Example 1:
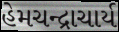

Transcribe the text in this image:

હેમચન્દ્રાચાર્ય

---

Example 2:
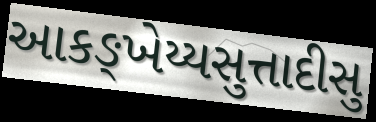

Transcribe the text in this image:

આકઙ્ખેય્યસુત્તાદીસુ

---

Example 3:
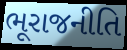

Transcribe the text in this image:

ભૂરાજનીતિ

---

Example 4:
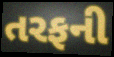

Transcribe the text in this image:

તરફની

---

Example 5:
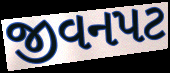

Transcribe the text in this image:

જીવનપટ